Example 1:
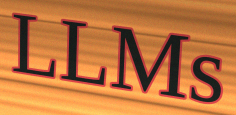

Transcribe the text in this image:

LLMs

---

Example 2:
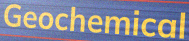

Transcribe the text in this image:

Geochemical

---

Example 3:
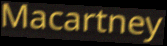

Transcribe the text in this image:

Macartney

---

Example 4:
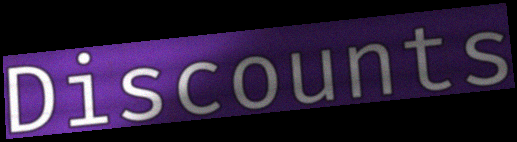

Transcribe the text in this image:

Discounts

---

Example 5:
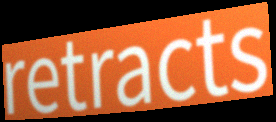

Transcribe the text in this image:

retracts